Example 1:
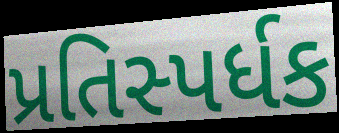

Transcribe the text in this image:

પ્રતિસ્પર્ધક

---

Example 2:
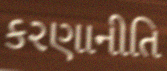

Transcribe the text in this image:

કરણાનીતિ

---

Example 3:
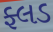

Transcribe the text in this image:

ફ્લડ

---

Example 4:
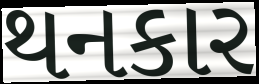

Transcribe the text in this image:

થનકાર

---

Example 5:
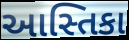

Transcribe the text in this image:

આસ્તિકા